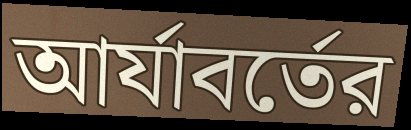
আর্যাবর্তের